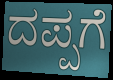
ದಪ್ಪಗೆ